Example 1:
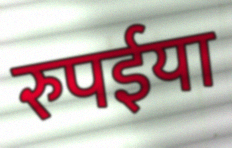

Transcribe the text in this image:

रुपईया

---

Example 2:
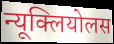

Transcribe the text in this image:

न्यूक्लियोलस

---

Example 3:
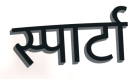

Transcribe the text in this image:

स्पार्टा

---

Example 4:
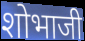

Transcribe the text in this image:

शोभाजी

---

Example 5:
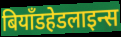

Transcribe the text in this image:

बियॉंडहेडलाइन्स